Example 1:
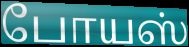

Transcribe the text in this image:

போயஸ்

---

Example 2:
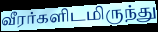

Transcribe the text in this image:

வீரர்களிடமிருந்து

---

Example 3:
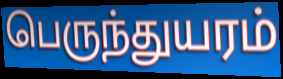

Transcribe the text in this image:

பெருந்துயரம்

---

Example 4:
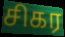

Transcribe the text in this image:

சிகர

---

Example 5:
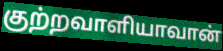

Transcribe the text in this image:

குற்றவாளியாவான்